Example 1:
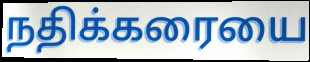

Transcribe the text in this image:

நதிக்கரையை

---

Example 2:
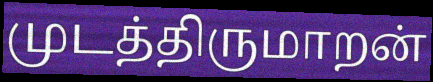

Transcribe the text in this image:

முடத்திருமாறன்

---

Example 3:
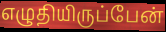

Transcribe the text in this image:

எழுதியிருப்பேன்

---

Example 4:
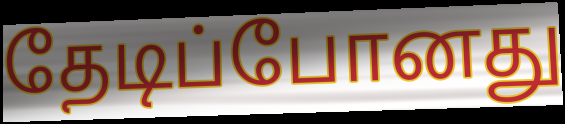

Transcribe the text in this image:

தேடிப்போனது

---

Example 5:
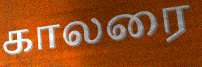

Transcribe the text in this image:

காலரை